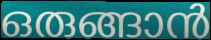
ഒരുങ്ങാൻ